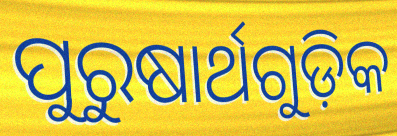
ପୁରୁଷାର୍ଥଗୁଡ଼ିକ